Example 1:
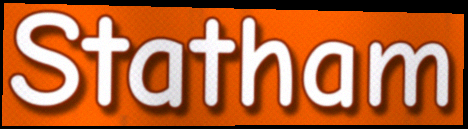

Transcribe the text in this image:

Statham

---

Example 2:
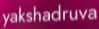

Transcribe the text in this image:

yakshadruva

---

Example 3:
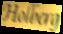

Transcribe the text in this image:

Holberg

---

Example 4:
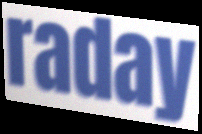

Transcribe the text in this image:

raday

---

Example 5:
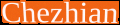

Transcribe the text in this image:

Chezhian